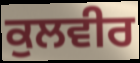
ਕੁਲਵੀਰ